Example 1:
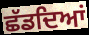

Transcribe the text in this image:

ਛੱਡਦਿਆਂ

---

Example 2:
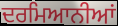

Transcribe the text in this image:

ਦਰਮਿਆਨੀਆਂ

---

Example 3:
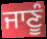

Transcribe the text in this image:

ਜਾਣੂੰ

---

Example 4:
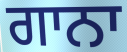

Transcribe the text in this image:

ਗਾਨਾ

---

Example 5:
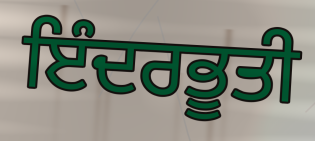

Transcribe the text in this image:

ਇੰਦਰਭੂਤੀ